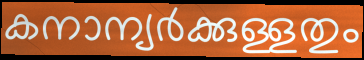
കനാന്യർക്കുള്ളതും